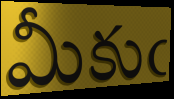
మీకుఁ